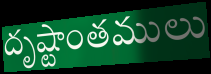
దృష్టాంతములు